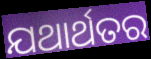
ଯଥାର୍ଥତର